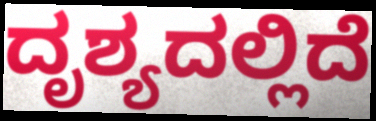
ದೃಶ್ಯದಲ್ಲಿದೆ